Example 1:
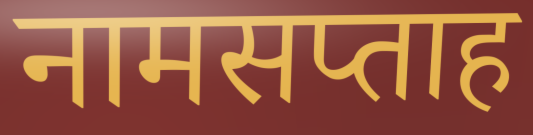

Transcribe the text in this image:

नामसप्ताह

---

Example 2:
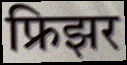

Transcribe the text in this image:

फ्रिझर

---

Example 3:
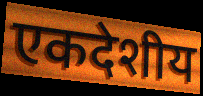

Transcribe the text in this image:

एकदेशीय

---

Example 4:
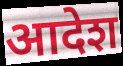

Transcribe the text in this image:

आदेश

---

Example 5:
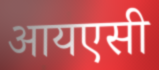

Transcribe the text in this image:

आयएसी